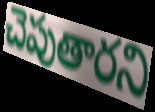
చెపుతారని